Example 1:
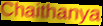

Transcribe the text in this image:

Chaithanya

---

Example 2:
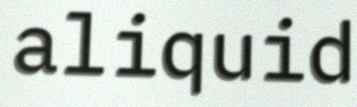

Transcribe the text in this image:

aliquid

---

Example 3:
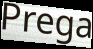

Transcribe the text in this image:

Prega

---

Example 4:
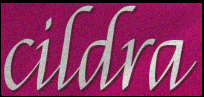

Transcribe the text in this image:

cildra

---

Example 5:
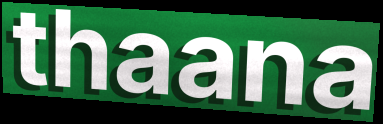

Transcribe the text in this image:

thaana